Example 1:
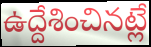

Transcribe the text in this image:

ఉద్దేశించినట్లే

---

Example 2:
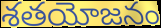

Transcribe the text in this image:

శతయోజనం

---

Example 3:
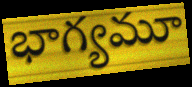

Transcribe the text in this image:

భాగ్యమూ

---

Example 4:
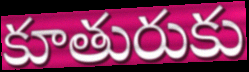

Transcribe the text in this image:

కూతురుకు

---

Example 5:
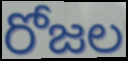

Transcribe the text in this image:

రోజల